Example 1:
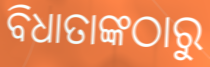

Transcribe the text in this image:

ବିଧାତାଙ୍କଠାରୁ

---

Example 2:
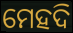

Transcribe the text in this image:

ମେହଦି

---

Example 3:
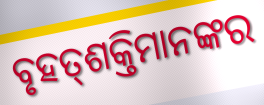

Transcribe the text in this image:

ବୃହତ୍‌ଶକ୍ତିମାନଙ୍କର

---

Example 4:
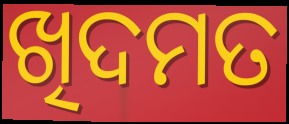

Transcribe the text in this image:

ଖିଦମତ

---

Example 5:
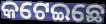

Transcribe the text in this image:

କଟେଇଛେ